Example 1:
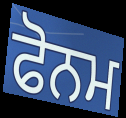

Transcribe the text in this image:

ਫੋਨਮ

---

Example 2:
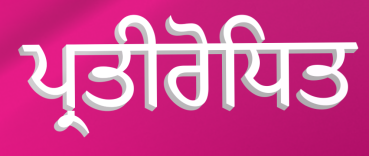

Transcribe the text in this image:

ਪ੍ਰਤੀਰੋਧਿਤ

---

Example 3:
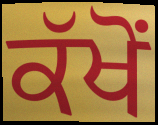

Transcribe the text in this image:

ਕੱਖੋਂ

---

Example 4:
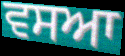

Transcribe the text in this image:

ਵਸਆ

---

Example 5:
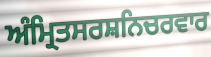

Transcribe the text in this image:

ਅੰਮ੍ਰਿਤਸਰਸ਼ਨਿਚਰਵਾਰ